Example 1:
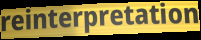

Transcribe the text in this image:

reinterpretation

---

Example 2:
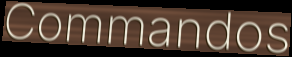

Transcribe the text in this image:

Commandos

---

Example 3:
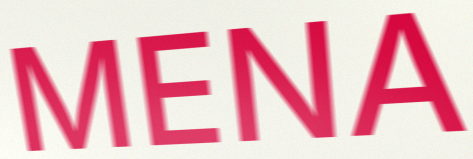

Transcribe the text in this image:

MENA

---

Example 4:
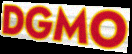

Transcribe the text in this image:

DGMO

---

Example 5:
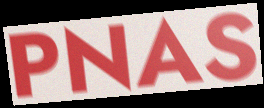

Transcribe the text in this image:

PNAS